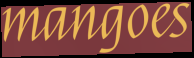
mangoes